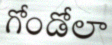
గోండోలా